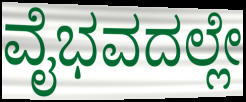
ವೈಭವದಲ್ಲೇ